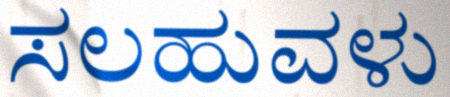
ಸಲಹುವಳು